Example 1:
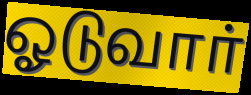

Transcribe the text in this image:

ஓடுவார்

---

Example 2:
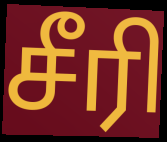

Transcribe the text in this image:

சீரி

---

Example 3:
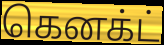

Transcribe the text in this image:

கெனக்ட்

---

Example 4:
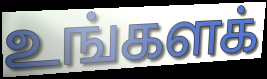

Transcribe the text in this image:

உங்களக்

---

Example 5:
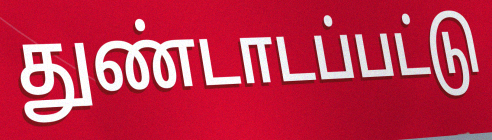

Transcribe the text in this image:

துண்டாடப்பட்டு